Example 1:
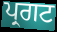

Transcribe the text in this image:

ਪ੍ਰਗਟ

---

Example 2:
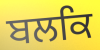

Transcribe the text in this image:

ਬਲਕਿ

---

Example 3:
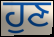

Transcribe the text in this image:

ਹੁਣ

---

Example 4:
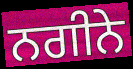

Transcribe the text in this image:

ਨਗੀਨੇ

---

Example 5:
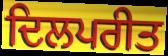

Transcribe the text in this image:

ਦਿਲਪਰੀਤ